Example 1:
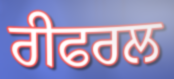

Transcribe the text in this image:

ਰੀਫਰਲ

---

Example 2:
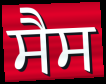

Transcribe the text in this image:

ਸੈਸ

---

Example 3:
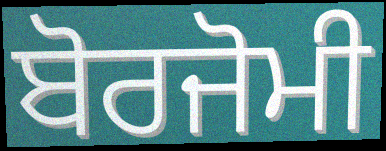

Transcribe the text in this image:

ਬੋਰਜੋਮੀ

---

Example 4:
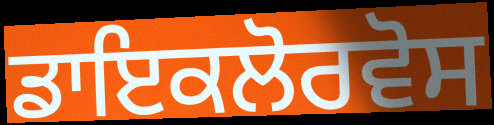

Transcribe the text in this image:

ਡਾਇਕਲੋਰਵੋਸ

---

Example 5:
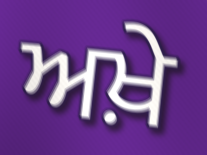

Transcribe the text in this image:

ਅਖ਼ੇ